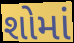
શોમાં